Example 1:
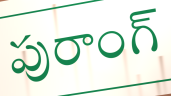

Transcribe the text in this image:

పురాంగ్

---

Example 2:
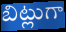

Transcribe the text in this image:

బిట్లుగా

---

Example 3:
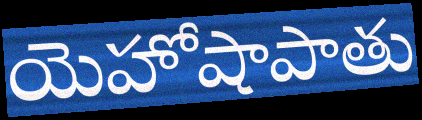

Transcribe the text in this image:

యెహోషాపాతు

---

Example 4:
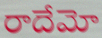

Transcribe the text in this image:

రాదేమో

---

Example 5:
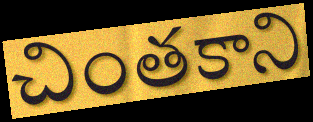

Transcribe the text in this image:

చింతకాని